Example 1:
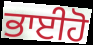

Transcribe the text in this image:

ਭਾਈਹੋ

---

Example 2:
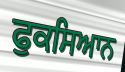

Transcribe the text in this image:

ਫੁਕਸਿਆਨ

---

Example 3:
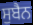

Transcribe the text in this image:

ਸੁਬੈਨ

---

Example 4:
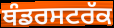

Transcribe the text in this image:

ਥੰਡਰਸਟਰੱਕ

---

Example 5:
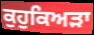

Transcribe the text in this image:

ਕੁਹੁਕਿਅੜਾ